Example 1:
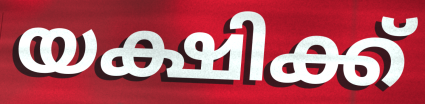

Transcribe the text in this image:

യക്ഷിക്ക്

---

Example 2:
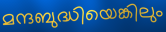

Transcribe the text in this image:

മന്ദബുദ്ധിയെങ്കിലും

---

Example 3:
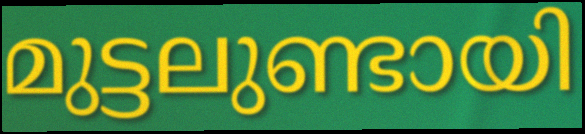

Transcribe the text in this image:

മുട്ടലുണ്ടായി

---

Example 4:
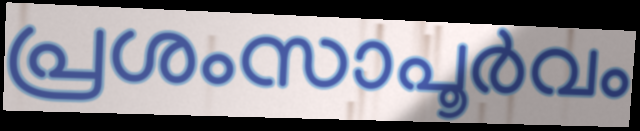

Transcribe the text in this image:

പ്രശംസാപൂർവം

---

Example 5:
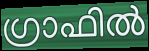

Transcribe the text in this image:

ഗ്രാഫിൽ